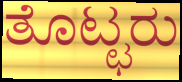
ತೊಟ್ಟರು